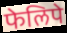
फेलिपे